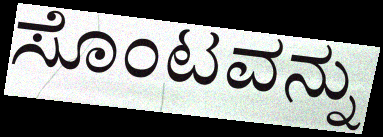
ಸೊಂಟವನ್ನು